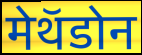
मेथॅडोन